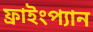
ফ্রাইংপ্যান